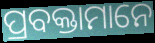
ପ୍ରବକ୍ତାମାନେ